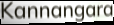
Kannangara